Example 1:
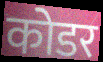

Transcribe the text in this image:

कोडर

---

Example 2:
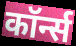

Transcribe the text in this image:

कॉर्न्स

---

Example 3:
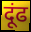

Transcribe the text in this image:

दूंढ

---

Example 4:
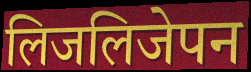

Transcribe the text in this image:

लिजलिजेपन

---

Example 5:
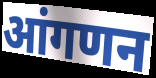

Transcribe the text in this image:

आंगणन